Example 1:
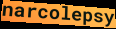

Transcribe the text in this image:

narcolepsy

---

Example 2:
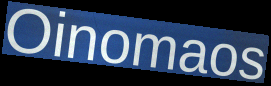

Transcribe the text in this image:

Oinomaos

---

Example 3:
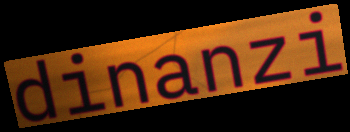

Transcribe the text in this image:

dinanzi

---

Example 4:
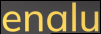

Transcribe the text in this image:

enalu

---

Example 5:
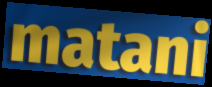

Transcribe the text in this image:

matani